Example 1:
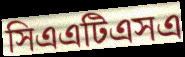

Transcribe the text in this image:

সিএএটিএসএ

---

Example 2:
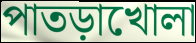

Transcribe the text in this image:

পাতড়াখোলা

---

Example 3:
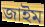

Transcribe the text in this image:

জাইম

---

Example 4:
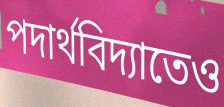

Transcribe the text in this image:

পদার্থবিদ্যাতেও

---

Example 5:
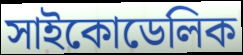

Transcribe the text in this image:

সাইকোডেলিক